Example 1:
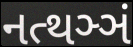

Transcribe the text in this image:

નત્થઞ્ઞં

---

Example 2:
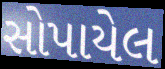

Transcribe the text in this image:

સોપાયેલ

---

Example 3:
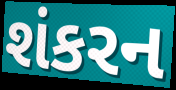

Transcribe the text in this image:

શંકરન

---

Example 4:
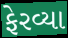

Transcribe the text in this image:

ફેરવ્યા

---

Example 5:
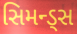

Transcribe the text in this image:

સિમન્ડ્સ